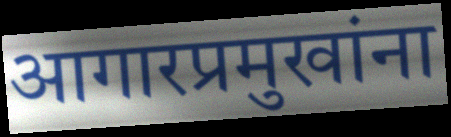
आगारप्रमुखांना